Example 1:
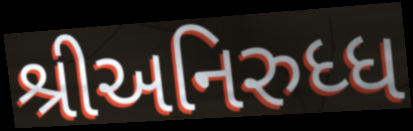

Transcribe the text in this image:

શ્રીઅનિરુધ્ધ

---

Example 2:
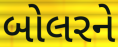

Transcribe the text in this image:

બોલરને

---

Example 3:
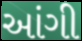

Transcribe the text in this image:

આંગી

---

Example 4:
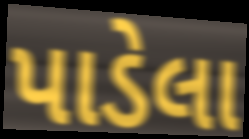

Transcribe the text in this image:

પાડેલા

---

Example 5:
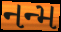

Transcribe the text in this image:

નન્મ